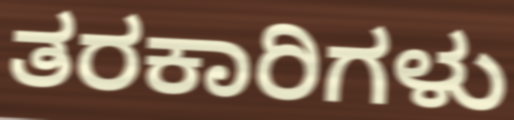
ತರಕಾರಿಗಳು